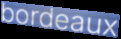
bordeaux